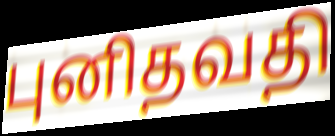
புனிதவதி